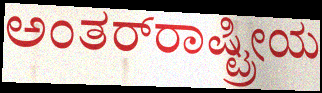
ಅಂತರ್‌ರಾಷ್ಟ್ರೀಯ